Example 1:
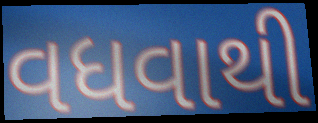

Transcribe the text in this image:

વધવાથી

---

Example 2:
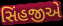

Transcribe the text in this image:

સિંહજીએ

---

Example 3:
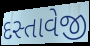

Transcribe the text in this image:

દસ્તાવેજી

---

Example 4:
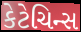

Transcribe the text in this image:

કેટેચિન્સ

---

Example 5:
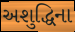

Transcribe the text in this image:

અશુદ્ધિના